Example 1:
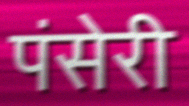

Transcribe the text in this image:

पंसेरी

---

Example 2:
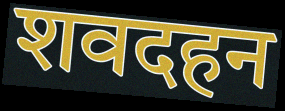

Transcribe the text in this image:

शवदहन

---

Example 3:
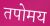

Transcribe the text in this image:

तपोमय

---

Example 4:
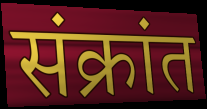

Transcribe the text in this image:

संक्रांत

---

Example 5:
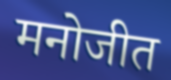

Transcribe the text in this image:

मनोजीत